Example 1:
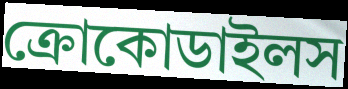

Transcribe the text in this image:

ক্রোকোডাইলস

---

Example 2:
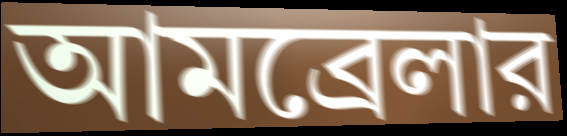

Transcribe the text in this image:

আমব্রেলার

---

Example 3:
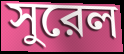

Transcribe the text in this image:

সুরেল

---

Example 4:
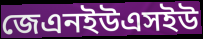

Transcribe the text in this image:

জেএনইউএসইউ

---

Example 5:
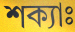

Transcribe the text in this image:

শক্যাঃ